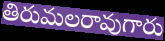
తిరుమలరావుగారు